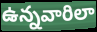
ఉన్నవారిలా